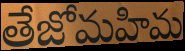
తేజోమహిమ